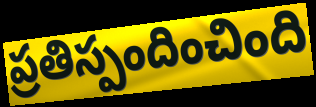
ప్రతిస్పందించింది